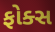
ફોક્સ